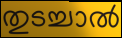
തുടച്ചാൽ